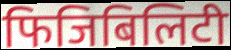
फिजिबिलिटी